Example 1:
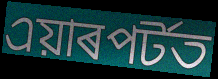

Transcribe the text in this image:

এয়াৰপৰ্টত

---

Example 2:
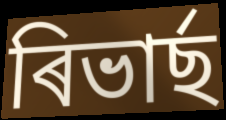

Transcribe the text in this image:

ৰিভাৰ্ছ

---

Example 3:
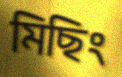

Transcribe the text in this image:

মিছিং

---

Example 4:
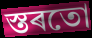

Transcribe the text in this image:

স্তৰতো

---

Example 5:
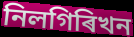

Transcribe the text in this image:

নিলগিৰিখন